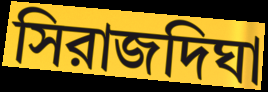
সিরাজদিঘা